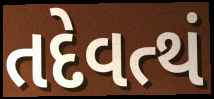
તદેવત્થં